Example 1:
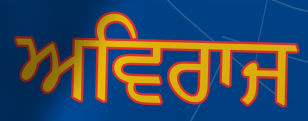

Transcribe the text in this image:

ਅਵਿਰਾਜ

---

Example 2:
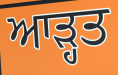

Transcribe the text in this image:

ਆੜ੍ਹਤ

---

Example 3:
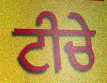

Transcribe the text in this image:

ਟੀਚੇ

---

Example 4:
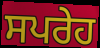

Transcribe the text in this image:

ਸਪਰੇਹ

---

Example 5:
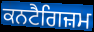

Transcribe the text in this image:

ਕਨਟੈਗਿਜ਼ਮ